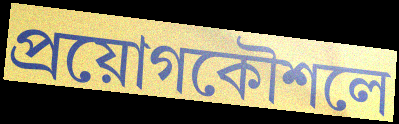
প্রয়োগকৌশলে